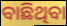
ବାଛିଥିବା